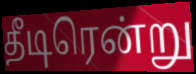
தீடிரென்று